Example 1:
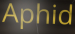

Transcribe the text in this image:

Aphid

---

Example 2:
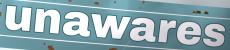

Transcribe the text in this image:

unawares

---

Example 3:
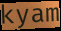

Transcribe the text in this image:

kyam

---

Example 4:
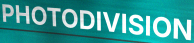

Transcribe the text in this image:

PHOTODIVISION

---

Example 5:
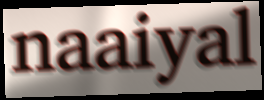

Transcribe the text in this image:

naaiyal